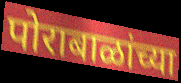
पोराबाळांच्या